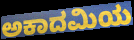
ಅಕಾದಮಿಯ